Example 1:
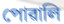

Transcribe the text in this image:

পোৱালি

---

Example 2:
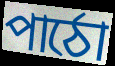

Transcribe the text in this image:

পাঠো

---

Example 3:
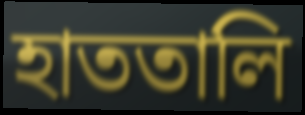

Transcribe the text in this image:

হাততালি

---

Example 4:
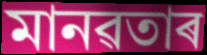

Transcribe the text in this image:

মানৱতাৰ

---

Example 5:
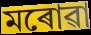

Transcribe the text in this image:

মৰোৱা